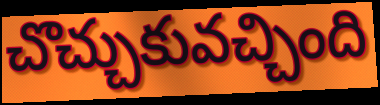
చొచ్చుకువచ్చింది